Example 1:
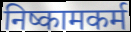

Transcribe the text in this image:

निष्कामकर्म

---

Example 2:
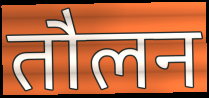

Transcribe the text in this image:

तौलन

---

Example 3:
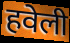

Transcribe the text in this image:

हवेली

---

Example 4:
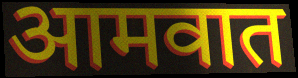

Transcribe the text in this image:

आमवात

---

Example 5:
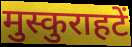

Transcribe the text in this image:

मुस्कुराहटें